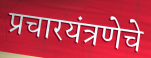
प्रचारयंत्रणेचे